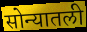
सोन्यातली